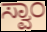
ಸ್ವಾಂ